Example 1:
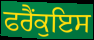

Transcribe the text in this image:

ਫਰੈਂਕੁਇਸ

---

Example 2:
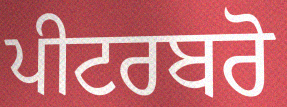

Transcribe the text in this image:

ਪੀਟਰਬਰੋ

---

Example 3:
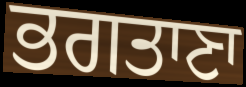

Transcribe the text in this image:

ਭਗਤਾਣਾ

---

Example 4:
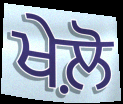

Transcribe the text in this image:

ਖੇਲ਼ੋ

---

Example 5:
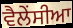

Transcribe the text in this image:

ਵੈਲੇਂਸੀਆ